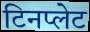
टिनप्लेट